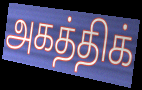
அகத்திக்